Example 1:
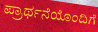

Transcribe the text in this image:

ಪ್ರಾರ್ಥನೆಯೊಂದಿಗೆ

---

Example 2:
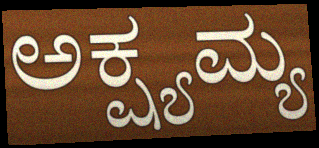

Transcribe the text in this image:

ಅಕ್ಷ್ಯಮ್ಯ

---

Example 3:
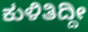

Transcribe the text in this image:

ಕುಳಿತಿದ್ದೀ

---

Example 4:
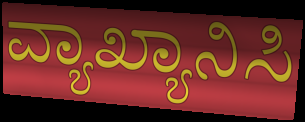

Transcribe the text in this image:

ವ್ಯಾಖ್ಯಾನಿಸಿ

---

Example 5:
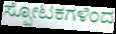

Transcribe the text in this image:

ಸ್ಪೋಟಕಗಳಿಂದ